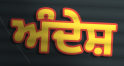
ਅੰਦੇਸ਼